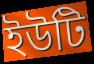
ইউটি